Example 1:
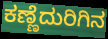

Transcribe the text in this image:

ಕಣ್ಣೆದುರಿಗಿನ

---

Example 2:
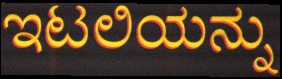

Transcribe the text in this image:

ಇಟಲಿಯನ್ನು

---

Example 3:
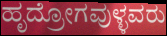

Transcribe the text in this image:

ಹೃದ್ರೋಗವುಳ್ಳವರು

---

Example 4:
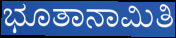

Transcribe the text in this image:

ಭೂತಾನಾಮಿತಿ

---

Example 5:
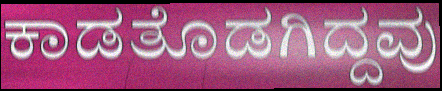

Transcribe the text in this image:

ಕಾಡತೊಡಗಿದ್ದವು